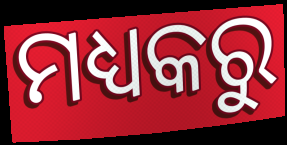
ମଧ୍ୟକରୁ